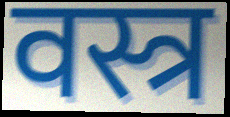
वस्त्र